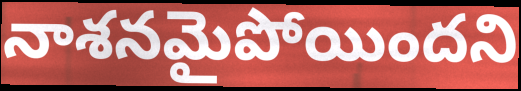
నాశనమైపోయిందని